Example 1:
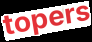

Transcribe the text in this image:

topers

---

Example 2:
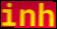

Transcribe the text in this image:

inh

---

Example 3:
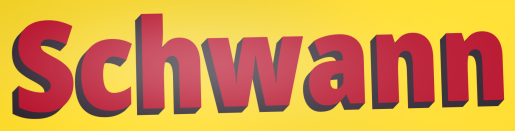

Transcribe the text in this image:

Schwann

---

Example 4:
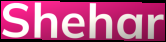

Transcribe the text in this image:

Shehar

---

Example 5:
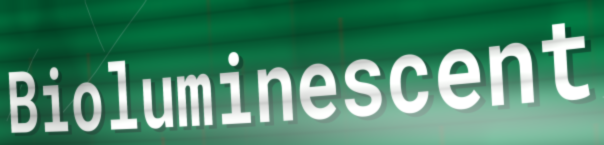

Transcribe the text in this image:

Bioluminescent